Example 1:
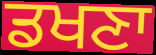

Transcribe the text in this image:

ਡਖਣਾ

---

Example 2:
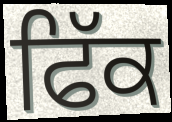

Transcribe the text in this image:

ਫਿੱਕ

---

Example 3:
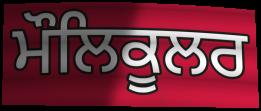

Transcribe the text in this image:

ਮੌਲਿਕੂਲਰ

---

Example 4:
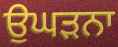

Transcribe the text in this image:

ਉਘੜਨਾ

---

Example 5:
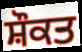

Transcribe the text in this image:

ਸ਼ੌਕਤ